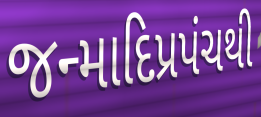
જન્માદિપ્રપંચથી